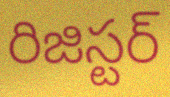
రిజిస్టర్